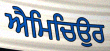
ਐਮਿਚਿਉਰ